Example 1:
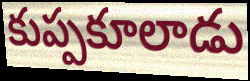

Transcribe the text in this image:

కుప్పకూలాడు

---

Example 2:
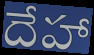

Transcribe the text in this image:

దేహా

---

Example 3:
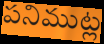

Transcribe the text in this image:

పనిముట్ల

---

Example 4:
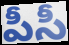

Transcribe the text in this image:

పీసీ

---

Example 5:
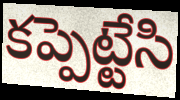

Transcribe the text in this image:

కప్పెట్టేసి